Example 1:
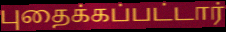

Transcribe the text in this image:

புதைக்கப்பட்டார்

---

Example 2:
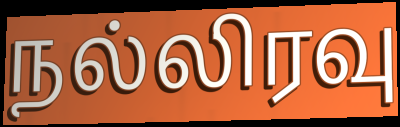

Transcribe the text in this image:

நல்லிரவு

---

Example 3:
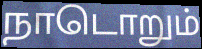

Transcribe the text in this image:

நாடொறும்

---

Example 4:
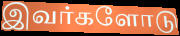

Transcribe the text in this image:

இவர்களோடு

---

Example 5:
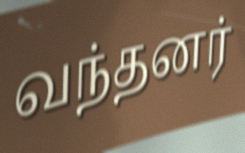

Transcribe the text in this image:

வந்தனர்